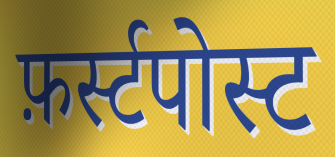
फ़र्स्टपोस्ट